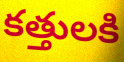
కత్తులకి